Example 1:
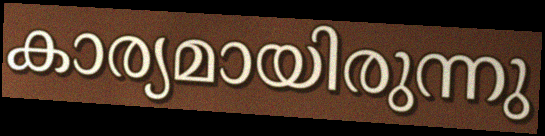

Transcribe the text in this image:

കാര്യമായിരുന്നു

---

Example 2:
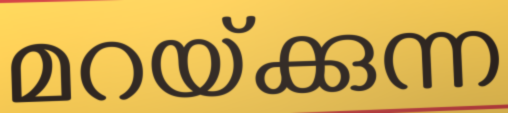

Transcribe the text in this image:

മറയ്‌ക്കുന്ന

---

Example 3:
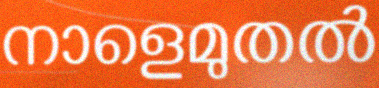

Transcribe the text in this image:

നാളെമുതൽ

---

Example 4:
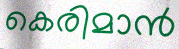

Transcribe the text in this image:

കെരിമാൻ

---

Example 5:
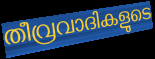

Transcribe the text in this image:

തീവ്രവാദികളുടെ